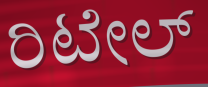
ರಿಟೇಲ್